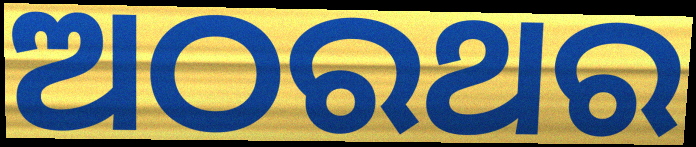
ଅଠରଥର